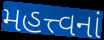
મહત્ત્વનાં